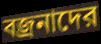
বজ্রনাদের